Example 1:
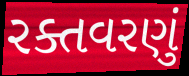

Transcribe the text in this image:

રક્તવરણું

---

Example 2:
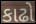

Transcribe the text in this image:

કાઢો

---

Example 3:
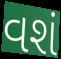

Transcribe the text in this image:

વશં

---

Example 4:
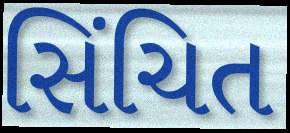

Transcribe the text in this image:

સિંચિત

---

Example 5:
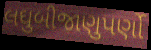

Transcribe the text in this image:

લઘુબીજાણુપર્ણો